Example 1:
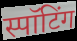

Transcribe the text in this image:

स्पॉटिंग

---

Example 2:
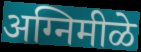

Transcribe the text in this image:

अग्निमीळे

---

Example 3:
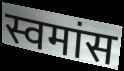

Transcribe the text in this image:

स्वमांस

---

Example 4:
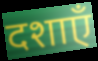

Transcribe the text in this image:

दशाएँ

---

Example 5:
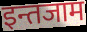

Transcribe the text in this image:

इन्तजाम